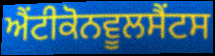
ਐਂਟੀਕੋਨਵੂਲਸੈਂਟਸ